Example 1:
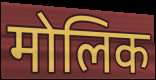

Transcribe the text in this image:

मोलिक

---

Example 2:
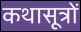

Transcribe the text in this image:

कथासूत्रों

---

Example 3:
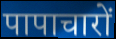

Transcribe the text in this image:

पापाचारों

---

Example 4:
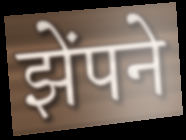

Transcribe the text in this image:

झेंपने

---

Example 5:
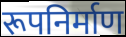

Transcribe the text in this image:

रूपनिर्माण